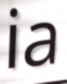
ia